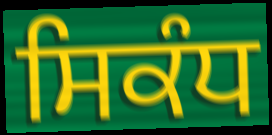
ਸਿਕੰਧ